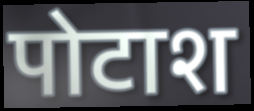
पोटाश